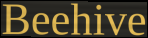
Beehive